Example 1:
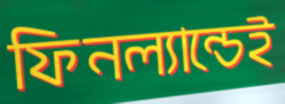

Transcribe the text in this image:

ফিনল্যান্ডেই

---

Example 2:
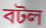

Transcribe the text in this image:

বটল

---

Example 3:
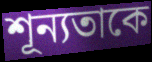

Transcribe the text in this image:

শূন্যতাকে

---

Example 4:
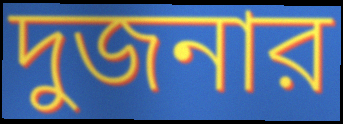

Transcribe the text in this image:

দুজনার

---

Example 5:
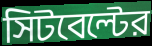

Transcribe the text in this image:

সিটবেল্টের